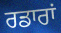
ਰਡਾਰਾਂ